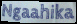
Ngaahika